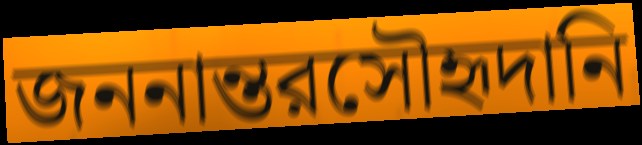
জননান্তরসৌহৃদানি